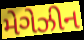
મેગેઝીન